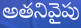
అతనివైపు